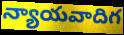
న్యాయవాదిగ